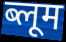
ब्लूम